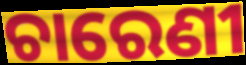
ଚାରେଣୀ